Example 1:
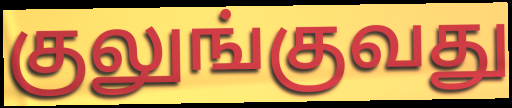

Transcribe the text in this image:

குலுங்குவது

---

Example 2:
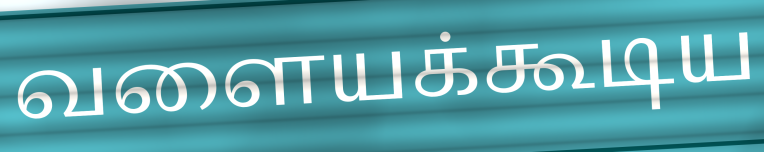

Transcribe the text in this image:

வளையக்கூடிய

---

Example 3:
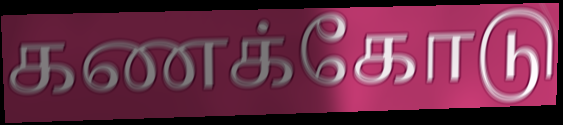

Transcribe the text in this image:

கணக்கோடு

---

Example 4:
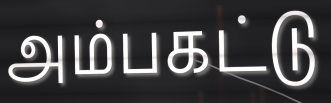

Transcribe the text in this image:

அம்பகட்டு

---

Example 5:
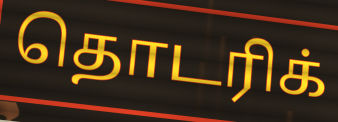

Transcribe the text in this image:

தொடரிக்